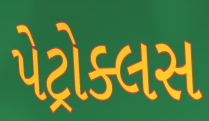
પેટ્રોક્લસ